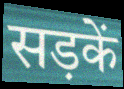
सड़कें